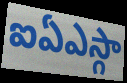
ఐఏఎస్గా